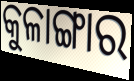
କୁଳାଙ୍ଗାର